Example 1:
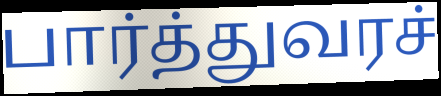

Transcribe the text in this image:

பார்த்துவரச்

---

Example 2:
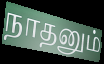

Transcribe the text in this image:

நாதனும்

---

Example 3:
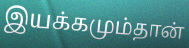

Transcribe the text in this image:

இயக்கமும்தான்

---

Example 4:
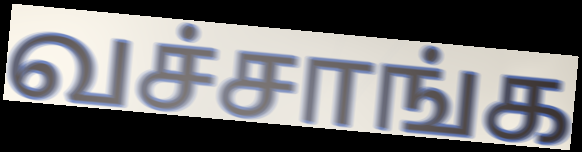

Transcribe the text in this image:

வச்சாங்க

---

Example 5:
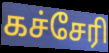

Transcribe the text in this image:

கச்சேரி